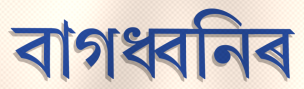
বাগধ্বনিৰ